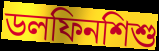
ডলফিনশিশু